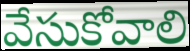
వేసుకోవాలి